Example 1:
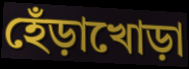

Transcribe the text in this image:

হেঁড়াখোড়া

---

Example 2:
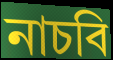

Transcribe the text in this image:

নাচবি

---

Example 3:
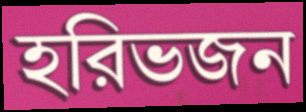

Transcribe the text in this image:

হরিভজন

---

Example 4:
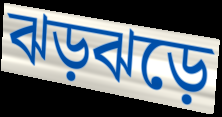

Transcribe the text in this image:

ঝড়ঝড়ে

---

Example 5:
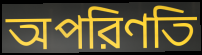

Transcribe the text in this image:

অপরিণতি